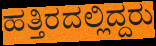
ಹತ್ತಿರದಲ್ಲಿದ್ದರು